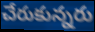
చేరుకున్నరు